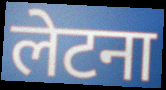
लेटना